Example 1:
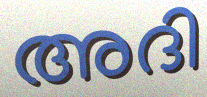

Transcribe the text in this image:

അദി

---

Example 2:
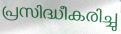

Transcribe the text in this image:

പ്രസിദ്ധീകരിച്ചു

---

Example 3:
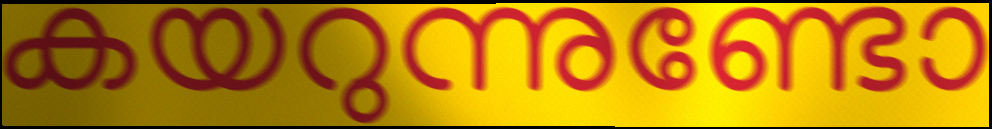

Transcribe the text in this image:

കയറുന്നുണ്ടോ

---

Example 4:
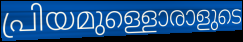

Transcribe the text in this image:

പ്രിയമുള്ളൊരാളുടെ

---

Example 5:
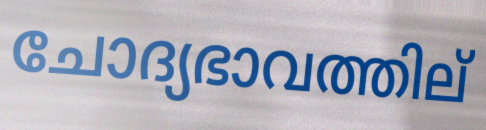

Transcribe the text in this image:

ചോദ്യഭാവത്തില്